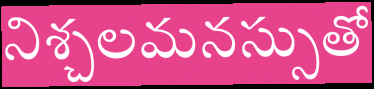
నిశ్చలమనస్సుతో